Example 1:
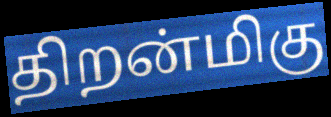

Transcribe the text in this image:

திறன்மிகு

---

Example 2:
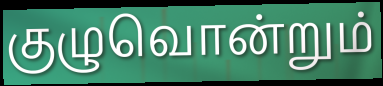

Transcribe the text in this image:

குழுவொன்றும்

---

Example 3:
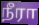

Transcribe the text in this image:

நீரா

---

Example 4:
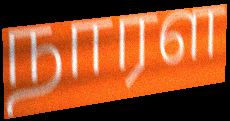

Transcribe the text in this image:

நாரள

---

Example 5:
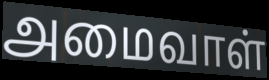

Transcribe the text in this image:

அமைவாள்